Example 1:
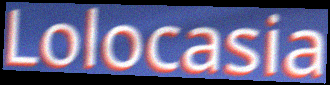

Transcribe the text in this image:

Lolocasia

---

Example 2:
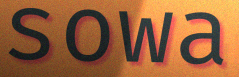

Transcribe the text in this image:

sowa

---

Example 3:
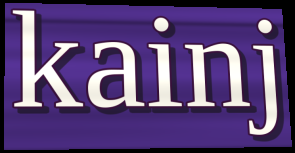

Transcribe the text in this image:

kainj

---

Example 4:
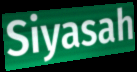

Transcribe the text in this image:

Siyasah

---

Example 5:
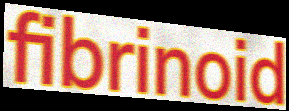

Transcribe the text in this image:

fibrinoid